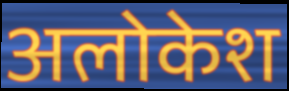
अलोकेश